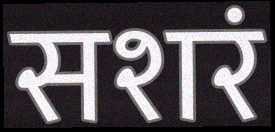
सशरं